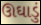
ઊઘાડું